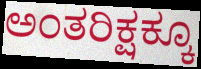
ಅಂತರಿಕ್ಷಕ್ಕೂ